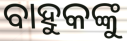
ବାହୁକଙ୍କୁ